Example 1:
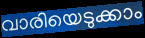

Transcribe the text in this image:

വാരിയെടുക്കാം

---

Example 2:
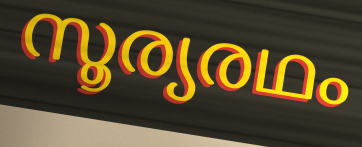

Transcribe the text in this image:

സൂര്യരഥം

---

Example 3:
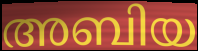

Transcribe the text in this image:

അബിയ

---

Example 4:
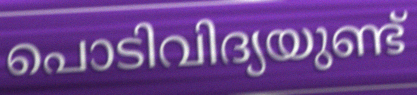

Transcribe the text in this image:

പൊടിവിദ്യയുണ്ട്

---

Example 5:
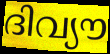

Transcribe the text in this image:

ദിവ്യൗ